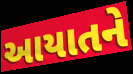
આયાતને